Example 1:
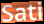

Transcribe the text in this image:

Sati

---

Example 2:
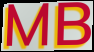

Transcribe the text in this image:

MB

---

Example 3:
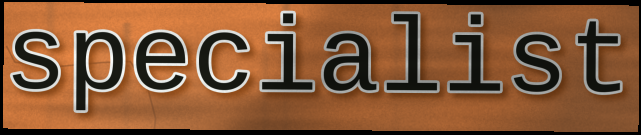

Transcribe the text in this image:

specialist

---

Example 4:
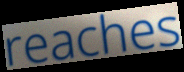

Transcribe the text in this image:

reaches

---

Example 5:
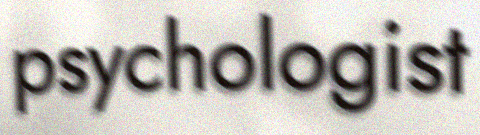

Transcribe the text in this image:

psychologist